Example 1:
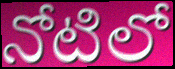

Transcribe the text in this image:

నోటిలో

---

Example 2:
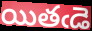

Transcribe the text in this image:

యితఁడె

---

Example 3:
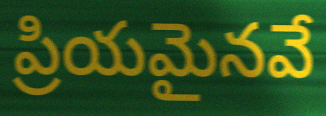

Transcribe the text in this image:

ప్రియమైనవే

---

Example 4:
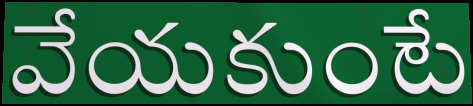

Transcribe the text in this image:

వేయకుంటే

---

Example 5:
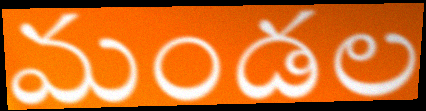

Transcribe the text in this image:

మండల